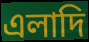
এলাদি